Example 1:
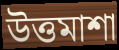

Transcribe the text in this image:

উত্তমাশা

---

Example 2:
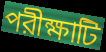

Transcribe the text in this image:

পরীক্ষাটি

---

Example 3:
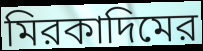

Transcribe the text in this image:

মিরকাদিমের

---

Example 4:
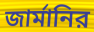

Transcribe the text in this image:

জার্মানির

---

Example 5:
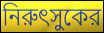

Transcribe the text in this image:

নিরুৎসুকের